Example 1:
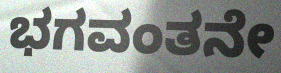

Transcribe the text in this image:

ಭಗವಂತನೇ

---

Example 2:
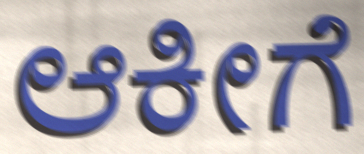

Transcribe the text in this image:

ಆಕೀಗೆ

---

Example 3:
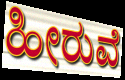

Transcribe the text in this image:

ಹೀರುವೆ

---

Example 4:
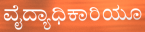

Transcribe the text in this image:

ವೈದ್ಯಾಧಿಕಾರಿಯೂ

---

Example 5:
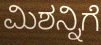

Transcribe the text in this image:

ಮಿಶನ್ನಿಗೆ